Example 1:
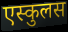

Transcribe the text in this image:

एस्कुलस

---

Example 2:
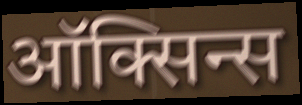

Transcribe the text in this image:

ऑक्सिन्स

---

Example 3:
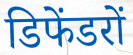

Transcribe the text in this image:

डिफेंडरों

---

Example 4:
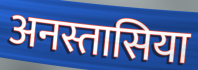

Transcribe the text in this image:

अनस्तासिया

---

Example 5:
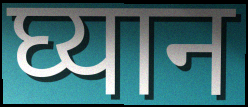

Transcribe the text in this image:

घ्यान